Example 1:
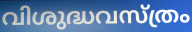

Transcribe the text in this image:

വിശുദ്ധവസ്ത്രം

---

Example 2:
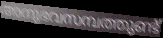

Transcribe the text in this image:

അനുഭവസമ്പത്തുണ്ട്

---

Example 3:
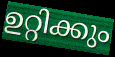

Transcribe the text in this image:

ഉറ്റിക്കും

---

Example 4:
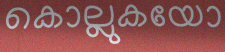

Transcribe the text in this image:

കൊല്ലുകയോ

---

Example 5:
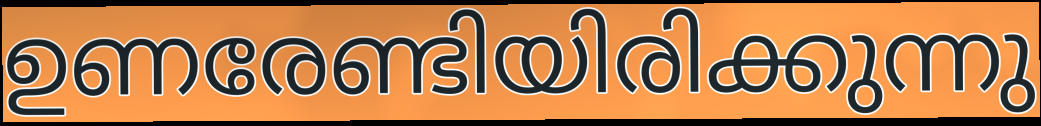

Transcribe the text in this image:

ഉണരേണ്ടിയിരിക്കുന്നു